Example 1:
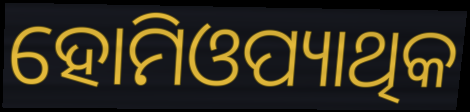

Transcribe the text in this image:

ହୋମିଓପ୍ୟାଥିକ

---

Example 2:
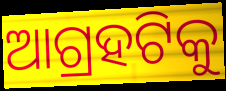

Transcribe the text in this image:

ଆଗ୍ରହଟିକୁ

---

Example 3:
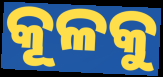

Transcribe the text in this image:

କୂଳକୁ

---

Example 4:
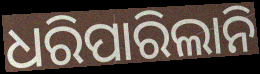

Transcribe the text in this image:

ଧରିପାରିଲାନି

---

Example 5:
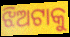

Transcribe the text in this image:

ଝିଅଟାକୁ